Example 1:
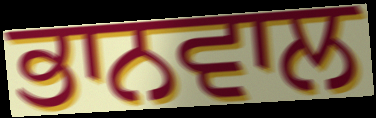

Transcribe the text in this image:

ਭਾਨਵਾਲ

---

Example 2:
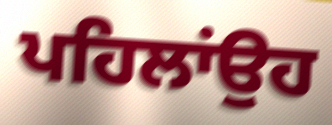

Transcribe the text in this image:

ਪਹਿਲਾਂਉਹ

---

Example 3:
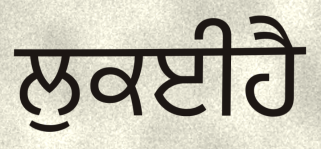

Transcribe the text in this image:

ਲੁਕਈਹੈ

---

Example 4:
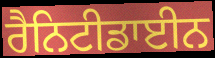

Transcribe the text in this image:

ਰੈਨਿਟੀਡਾਈਨ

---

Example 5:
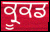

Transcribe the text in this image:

ਕ੍ਰੂਕਡ